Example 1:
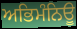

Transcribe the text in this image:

ਅਭਿਮੰਨਿਊ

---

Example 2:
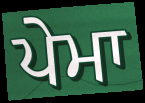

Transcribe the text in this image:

ਪੇਮਾ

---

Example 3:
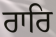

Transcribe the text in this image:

ਰਾਰਿ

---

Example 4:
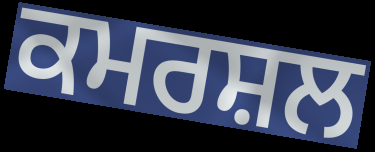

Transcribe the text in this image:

ਕਮਰਸ਼ਲ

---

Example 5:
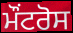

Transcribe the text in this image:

ਮੌਂਟਰੋਸ